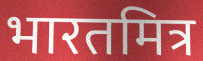
भारतमित्र